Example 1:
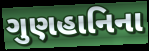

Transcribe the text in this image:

ગુણહાનિના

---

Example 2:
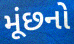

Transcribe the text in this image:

મૂંછનો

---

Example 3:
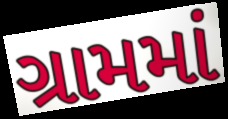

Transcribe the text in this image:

ગ્રામમાં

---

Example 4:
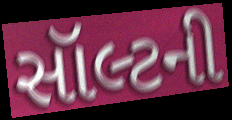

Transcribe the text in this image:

સૉલ્ટની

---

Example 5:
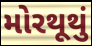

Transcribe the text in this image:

મોરથૂથું